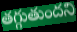
తగ్గుతుందని